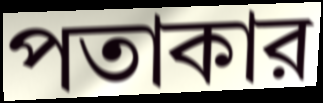
পতাকার